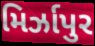
મિર્ઝાપુર